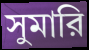
সুমারি